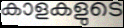
കാളകളുടെ